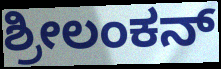
ಶ್ರೀಲಂಕನ್